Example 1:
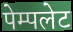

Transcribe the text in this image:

पेम्पलेट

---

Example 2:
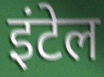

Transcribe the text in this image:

इंटेल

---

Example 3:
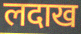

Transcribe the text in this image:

लदाख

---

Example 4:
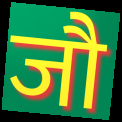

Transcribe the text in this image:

जौ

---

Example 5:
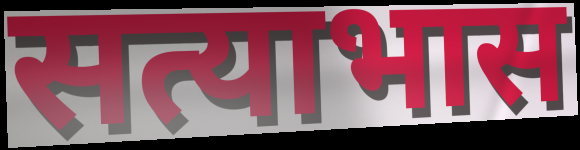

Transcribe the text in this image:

सत्याभास